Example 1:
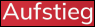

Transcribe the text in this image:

Aufstieg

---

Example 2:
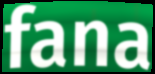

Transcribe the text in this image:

fana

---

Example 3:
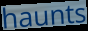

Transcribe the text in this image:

haunts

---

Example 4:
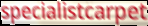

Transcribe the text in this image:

specialistcarpet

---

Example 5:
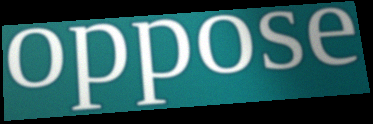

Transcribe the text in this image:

oppose